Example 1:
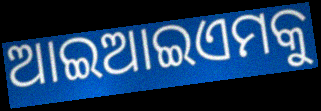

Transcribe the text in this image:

ଆଇଆଇଏମକୁ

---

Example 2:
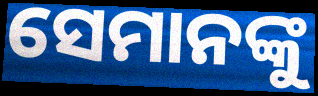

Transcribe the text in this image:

ସେମାନଙ୍କୁ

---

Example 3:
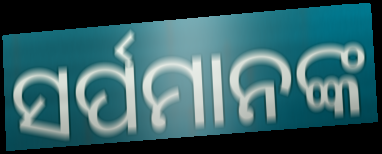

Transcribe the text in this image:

ସର୍ପମାନଙ୍କ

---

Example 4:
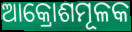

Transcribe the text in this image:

ଆକ୍ରୋଶମୂଳକ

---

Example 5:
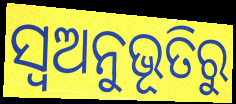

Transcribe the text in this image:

ସ୍ୱଅନୁଭୂତିରୁ